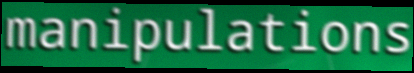
manipulations